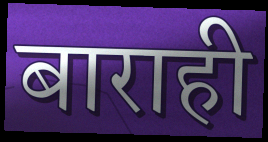
बाराही